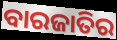
ବାରଜାତିର